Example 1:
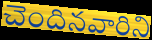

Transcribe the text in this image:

చెందినవారిని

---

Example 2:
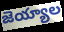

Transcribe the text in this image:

జెయ్యాల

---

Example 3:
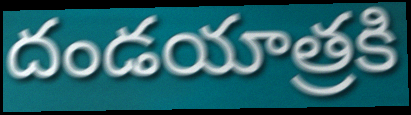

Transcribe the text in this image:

దండయాత్రకి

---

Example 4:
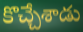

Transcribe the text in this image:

కొచ్చేశాడు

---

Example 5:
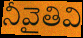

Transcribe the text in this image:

నీవైతివి